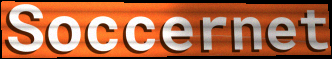
Soccernet